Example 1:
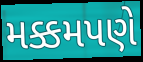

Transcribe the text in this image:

મક્કમપણે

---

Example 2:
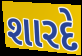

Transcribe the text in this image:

શારદે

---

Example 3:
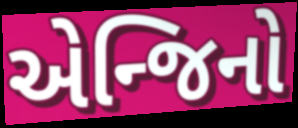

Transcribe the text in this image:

એન્જિનો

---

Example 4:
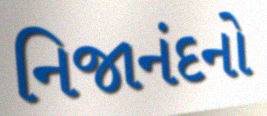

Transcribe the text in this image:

નિજાનંદનો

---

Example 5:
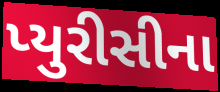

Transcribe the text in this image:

પ્યુરીસીના